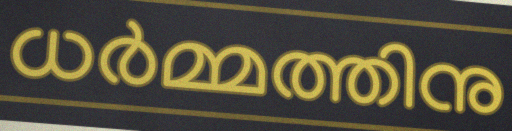
ധർമ്മത്തിനു